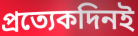
প্রত্যেকদিনই